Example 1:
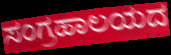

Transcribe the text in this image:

ಸಂಗ್ರಹಾಲಯದ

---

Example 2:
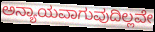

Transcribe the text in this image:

ಅನ್ಯಾಯವಾಗುವುದಿಲ್ಲವೇ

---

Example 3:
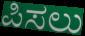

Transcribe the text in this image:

ಪಿಸಲು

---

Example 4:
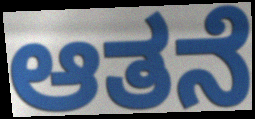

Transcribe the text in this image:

ಆತನೆ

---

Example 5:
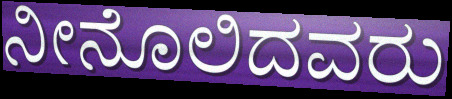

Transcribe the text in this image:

ನೀನೊಲಿದವರು